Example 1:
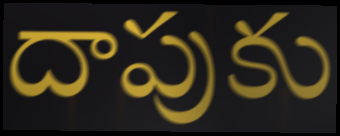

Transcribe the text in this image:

దాపుకు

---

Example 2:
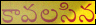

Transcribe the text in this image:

కావలసిన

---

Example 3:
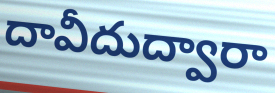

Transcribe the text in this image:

దావీదుద్వారా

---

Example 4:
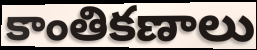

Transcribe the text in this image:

కాంతికణాలు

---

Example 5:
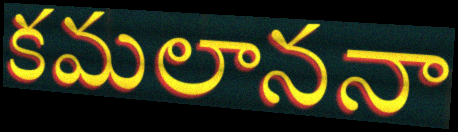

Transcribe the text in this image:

కమలాననా